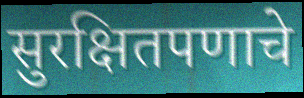
सुरक्षितपणाचे